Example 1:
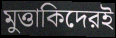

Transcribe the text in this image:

মুত্তাকিদেরই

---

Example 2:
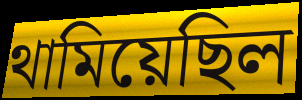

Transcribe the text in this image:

থামিয়েছিল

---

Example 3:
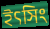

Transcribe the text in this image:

ইৎসিং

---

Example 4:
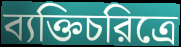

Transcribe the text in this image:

ব্যক্তিচরিত্রে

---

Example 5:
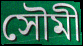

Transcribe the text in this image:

সৌমী